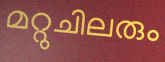
മറ്റുചിലരും